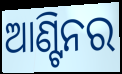
ଆଣ୍ଟିନର